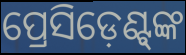
ପ୍ରେସିଡ଼େଣ୍ଟ୍‍ଙ୍କ